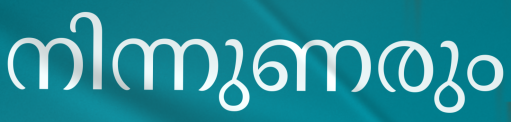
നിന്നുണരും